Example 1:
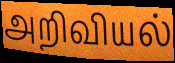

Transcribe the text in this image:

அறிவியல்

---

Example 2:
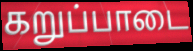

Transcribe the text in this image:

கறுப்பாடை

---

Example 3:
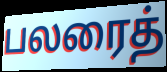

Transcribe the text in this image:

பலரைத்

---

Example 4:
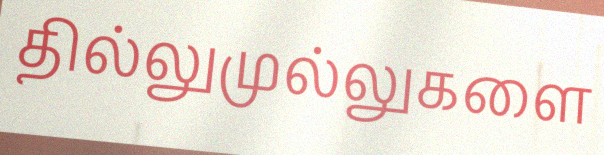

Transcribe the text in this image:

தில்லுமுல்லுகளை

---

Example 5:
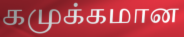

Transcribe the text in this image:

கமுக்கமான